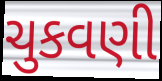
ચુકવણી